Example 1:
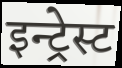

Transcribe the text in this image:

इन्ट्रेस्ट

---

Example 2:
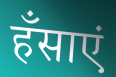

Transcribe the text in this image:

हँसाएं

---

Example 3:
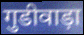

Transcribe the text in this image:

गुडीवाड़ा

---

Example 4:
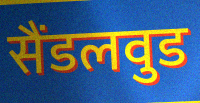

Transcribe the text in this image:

सैंडलवुड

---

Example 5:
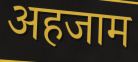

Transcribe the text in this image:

अहजाम